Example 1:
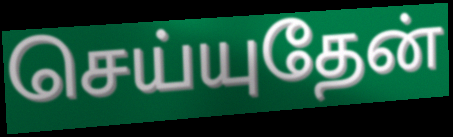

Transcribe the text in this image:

செய்யுதேன்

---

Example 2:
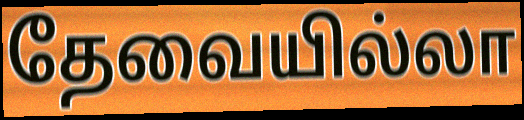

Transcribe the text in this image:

தேவையில்லா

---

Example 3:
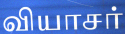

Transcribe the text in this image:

வியாசர்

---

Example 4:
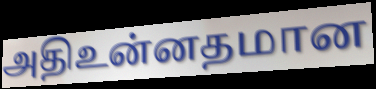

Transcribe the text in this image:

அதிஉன்னதமான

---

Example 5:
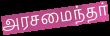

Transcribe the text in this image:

அரசமைந்தர்